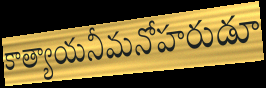
కాత్యాయనీమనోహరుడూ